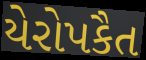
યેરોપકૈત